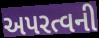
અપરત્વની